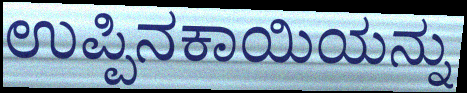
ಉಪ್ಪಿನಕಾಯಿಯನ್ನು